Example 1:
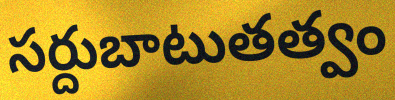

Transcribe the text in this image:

సర్దుబాటుతత్వం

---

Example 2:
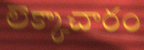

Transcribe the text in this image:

లెక్కాచారం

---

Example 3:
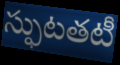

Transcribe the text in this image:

స్ఫుటతటీ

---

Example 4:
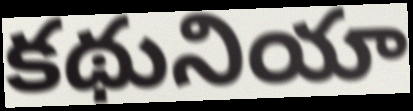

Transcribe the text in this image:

కథునియా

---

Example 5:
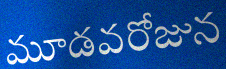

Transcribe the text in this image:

మూడవరోజున